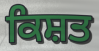
ਕਿਸ਼ਤ